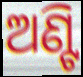
ଅଣ୍ଟି